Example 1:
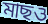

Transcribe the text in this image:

মাছও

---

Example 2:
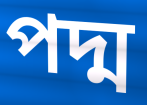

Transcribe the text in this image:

পদ্ম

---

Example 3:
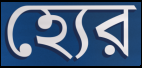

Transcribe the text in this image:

হ্যের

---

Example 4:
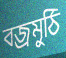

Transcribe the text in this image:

বজ্রমুঠি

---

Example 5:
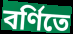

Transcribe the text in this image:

বর্ণিতে